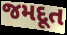
જમદૂત